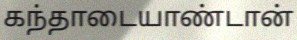
கந்தாடையாண்டான்